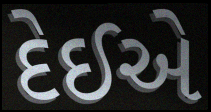
દેઈએ